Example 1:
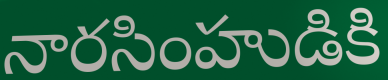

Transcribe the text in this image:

నారసింహుడికి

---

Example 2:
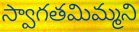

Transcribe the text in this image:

స్వాగతమిమ్మని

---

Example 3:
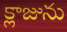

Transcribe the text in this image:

క్లాజును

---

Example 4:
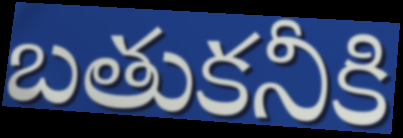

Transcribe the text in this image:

బతుకనీకి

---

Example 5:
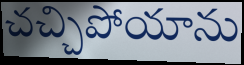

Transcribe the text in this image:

చచ్చిపోయాను